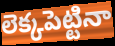
లెక్కపెట్టినా